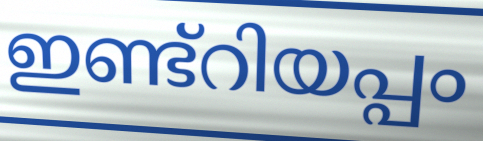
ഇണ്ട്റിയപ്പം